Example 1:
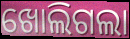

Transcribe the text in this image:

ଖୋଲିଗଲା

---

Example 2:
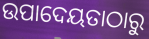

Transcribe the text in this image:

ଉପାଦେୟତାଠାରୁ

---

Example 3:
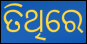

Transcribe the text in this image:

ତିଥିରେ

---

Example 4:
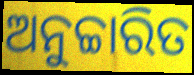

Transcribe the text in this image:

ଅନୁଚ୍ଚାରିତ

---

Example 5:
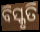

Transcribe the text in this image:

ବିସ୍କୃତି